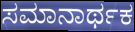
ಸಮಾನಾರ್ಥಕ